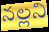
నల్లని